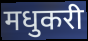
मधुकरी